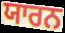
ਯਾਰਨ